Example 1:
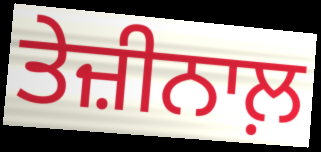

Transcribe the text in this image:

ਤੇਜ਼ੀਨਾਲ਼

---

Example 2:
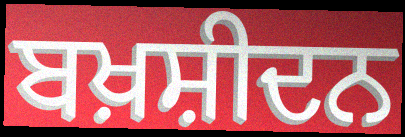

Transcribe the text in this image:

ਬਖ਼ਸ਼ੀਦਨ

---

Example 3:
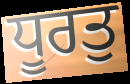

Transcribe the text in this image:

ਧੂਰਤੁ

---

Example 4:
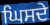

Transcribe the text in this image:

ਘਿਸਦੇ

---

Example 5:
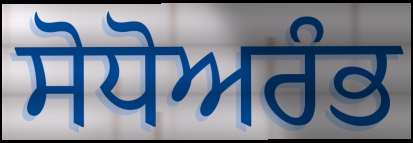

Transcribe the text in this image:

ਸੋਧੋਅਰੰਭ